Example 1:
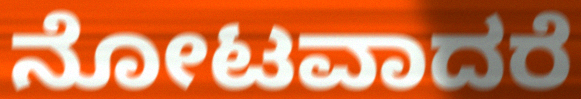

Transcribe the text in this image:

ನೋಟವಾದರೆ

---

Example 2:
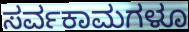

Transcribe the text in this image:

ಸರ್ವಕಾಮಗಳೂ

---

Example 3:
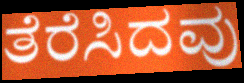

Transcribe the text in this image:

ತೆರೆಸಿದವು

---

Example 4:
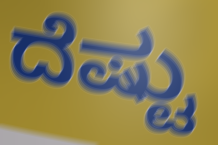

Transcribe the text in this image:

ದೆಷ್ಟು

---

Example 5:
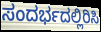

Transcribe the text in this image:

ಸಂದರ್ಭದಲ್ಲಿರಿಸಿ